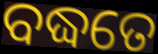
ବଦ୍ଧତେ